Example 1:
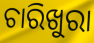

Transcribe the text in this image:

ଚାରିଖୁରା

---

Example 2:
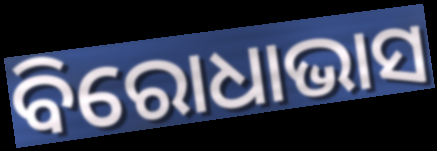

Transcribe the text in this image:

ବିରୋଧାଭାସ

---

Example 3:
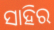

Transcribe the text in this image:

ସାହିର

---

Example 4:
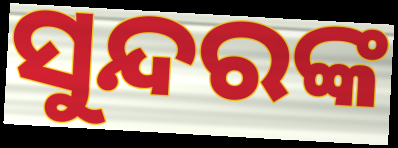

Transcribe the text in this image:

ସୁନ୍ଦରଙ୍କ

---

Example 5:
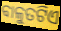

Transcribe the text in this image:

ବାଳୁତଟିଏ